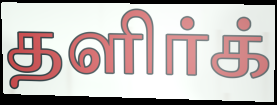
தளிர்க்